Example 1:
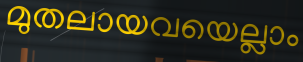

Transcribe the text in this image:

മുതലായവയെല്ലാം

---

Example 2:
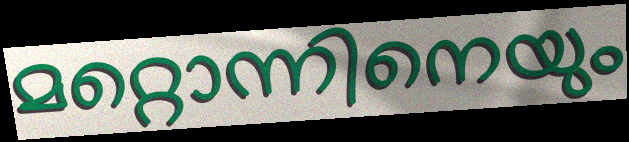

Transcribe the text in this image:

മറ്റൊന്നിനെയും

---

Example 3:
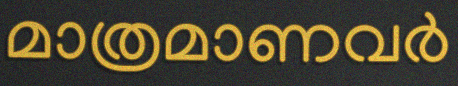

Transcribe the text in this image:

മാത്രമാണവർ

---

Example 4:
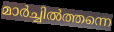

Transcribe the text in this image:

മാർച്ചിൽത്തന്നെ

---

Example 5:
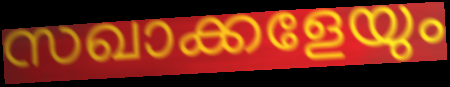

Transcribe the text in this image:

സഖാക്കളേയും